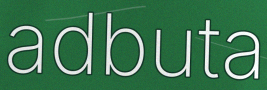
adbuta